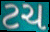
ટચ